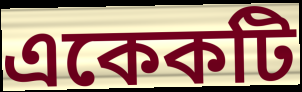
একেকটি